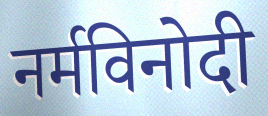
नर्मविनोदी